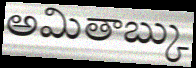
అమితాబ్కు